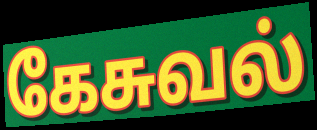
கேசுவல்